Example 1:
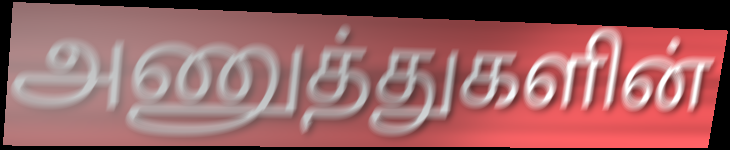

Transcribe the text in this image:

அணுத்துகளின்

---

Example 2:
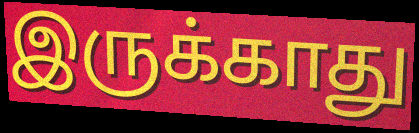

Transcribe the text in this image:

இருக்காது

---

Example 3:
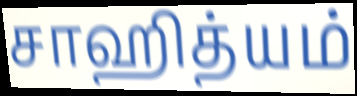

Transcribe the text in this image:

சாஹித்யம்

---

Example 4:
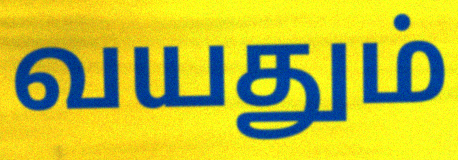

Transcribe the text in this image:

வயதும்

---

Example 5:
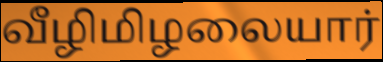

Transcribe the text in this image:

வீழிமிழலையார்